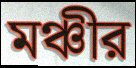
মঞ্চীর